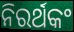
ନିରର୍ଥକଂ